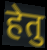
हेतु